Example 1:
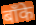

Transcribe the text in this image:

बाँके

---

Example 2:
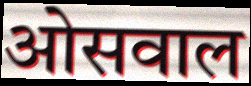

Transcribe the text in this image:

ओसवाल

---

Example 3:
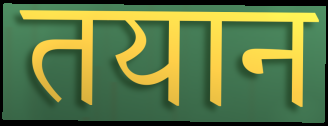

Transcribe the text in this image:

तयान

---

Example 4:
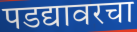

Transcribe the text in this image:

पडद्यावरचा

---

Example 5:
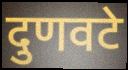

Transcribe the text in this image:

दुणवटे